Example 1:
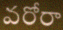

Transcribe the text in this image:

వరోరా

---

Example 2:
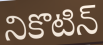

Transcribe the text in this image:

నికొటిన్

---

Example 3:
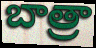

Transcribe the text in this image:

బాత్రా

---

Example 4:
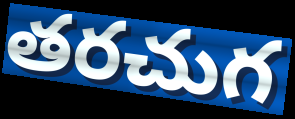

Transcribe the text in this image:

తరచుగ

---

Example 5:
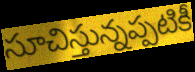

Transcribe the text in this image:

సూచిస్తున్నప్పటికీ